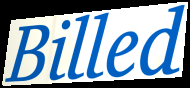
Billed